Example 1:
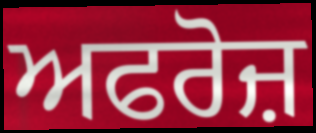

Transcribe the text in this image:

ਅਫਰੋਜ਼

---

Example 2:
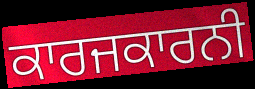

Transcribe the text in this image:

ਕਾਰਜਕਾਰਨੀ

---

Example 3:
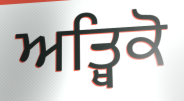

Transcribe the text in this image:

ਅਤ੍ਥਿਕੋ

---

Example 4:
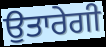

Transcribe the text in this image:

ਉਤਾਰੇਗੀ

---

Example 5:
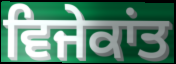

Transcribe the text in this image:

ਵਿਜੇਕਾਂਤ